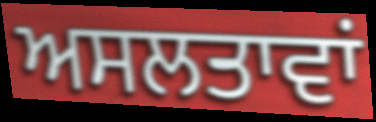
ਅਸਲਤਾਵਾਂ